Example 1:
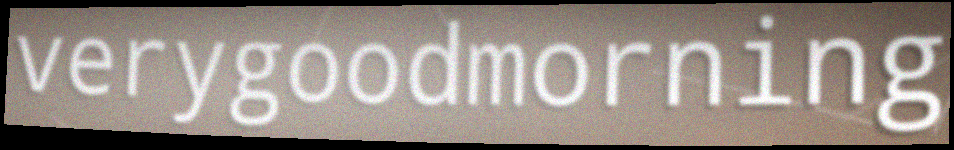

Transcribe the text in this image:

verygoodmorning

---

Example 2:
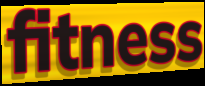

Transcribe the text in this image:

fitness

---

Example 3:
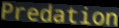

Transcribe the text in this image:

Predation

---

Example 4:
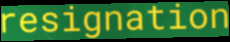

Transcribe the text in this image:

resignation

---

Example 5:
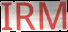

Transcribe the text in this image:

IRM